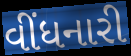
વીંધનારી